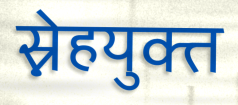
स्नेहयुक्त